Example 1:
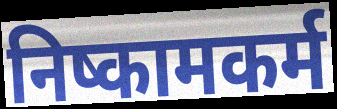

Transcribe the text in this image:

निष्कामकर्म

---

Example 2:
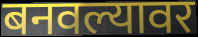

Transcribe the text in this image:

बनवल्यावर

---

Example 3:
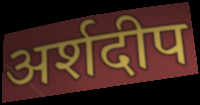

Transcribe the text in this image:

अर्शदीप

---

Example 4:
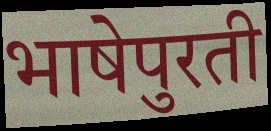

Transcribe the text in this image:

भाषेपुरती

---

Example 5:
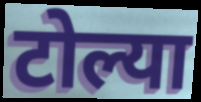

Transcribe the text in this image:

टोल्या